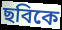
ছবিকে